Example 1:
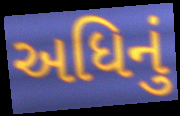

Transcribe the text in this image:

અધિનું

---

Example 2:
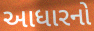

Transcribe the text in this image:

આધારનો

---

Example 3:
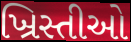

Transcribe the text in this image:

ખ્રિસ્તીઓ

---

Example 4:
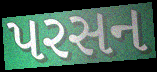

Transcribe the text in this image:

પરસન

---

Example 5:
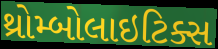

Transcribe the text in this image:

થ્રોમ્બોલાઇટિક્સ